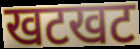
खटखट